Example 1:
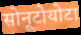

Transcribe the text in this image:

सोनूटोयोटा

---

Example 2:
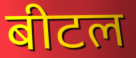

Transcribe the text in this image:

बीटल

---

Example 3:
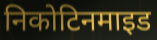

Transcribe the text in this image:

निकोटिनमाइड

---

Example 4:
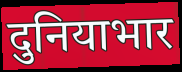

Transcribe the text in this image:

दुनियाभार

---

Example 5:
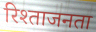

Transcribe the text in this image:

रिश्ताजनता